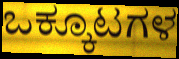
ಒಕ್ಕೂಟಗಳ